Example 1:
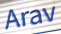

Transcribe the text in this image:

Arav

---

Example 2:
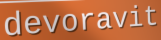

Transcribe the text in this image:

devoravit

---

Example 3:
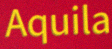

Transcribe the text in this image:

Aquila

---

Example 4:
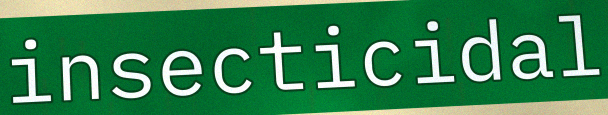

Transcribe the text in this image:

insecticidal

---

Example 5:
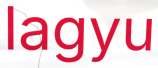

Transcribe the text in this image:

lagyu